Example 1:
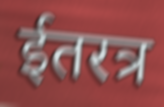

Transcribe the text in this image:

ईतरत्र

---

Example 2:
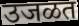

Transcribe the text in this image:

उजळत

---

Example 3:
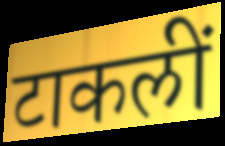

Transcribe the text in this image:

टाकलीं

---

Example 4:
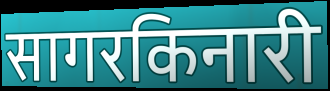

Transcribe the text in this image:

सागरकिनारी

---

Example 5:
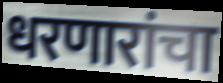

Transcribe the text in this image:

धरणारांचा